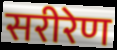
सरीरेण